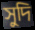
সুদি